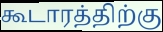
கூடாரத்திற்கு